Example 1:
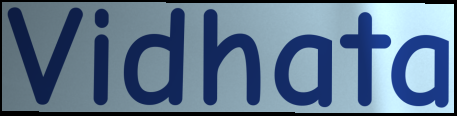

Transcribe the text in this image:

Vidhata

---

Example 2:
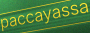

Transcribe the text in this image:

paccayassa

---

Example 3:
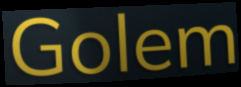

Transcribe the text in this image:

Golem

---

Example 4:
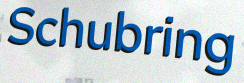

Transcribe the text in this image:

Schubring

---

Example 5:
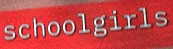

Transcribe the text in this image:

schoolgirls